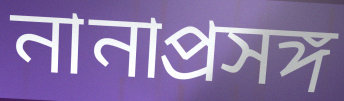
নানাপ্রসঙ্গ